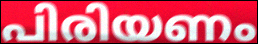
പിരിയണം